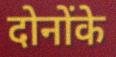
दोनोंके